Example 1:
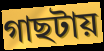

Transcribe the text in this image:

গাছটায়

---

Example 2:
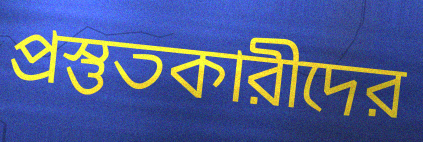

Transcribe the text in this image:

প্রস্তুতকারীদের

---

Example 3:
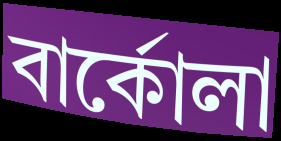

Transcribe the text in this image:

বার্কোলা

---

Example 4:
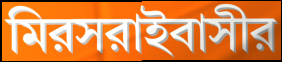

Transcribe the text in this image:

মিরসরাইবাসীর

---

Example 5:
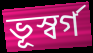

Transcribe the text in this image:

ভূস্বর্গ